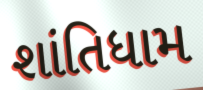
શાંતિધામ